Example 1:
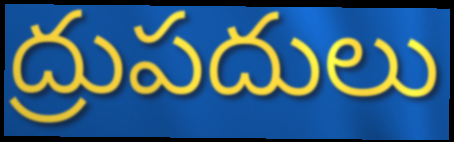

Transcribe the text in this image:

ద్రుపదులు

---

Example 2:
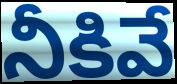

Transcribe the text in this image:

నీకివే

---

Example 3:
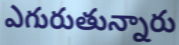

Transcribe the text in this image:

ఎగురుతున్నారు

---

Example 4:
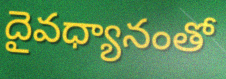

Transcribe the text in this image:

దైవధ్యానంతో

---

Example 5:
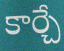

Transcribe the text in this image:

కార్చే